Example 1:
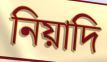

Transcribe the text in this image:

নিয়াদি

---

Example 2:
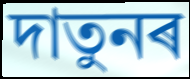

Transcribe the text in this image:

দাতুনৰ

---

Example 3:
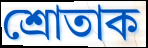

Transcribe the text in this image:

শ্ৰোতাক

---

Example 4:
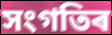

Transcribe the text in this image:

সংগতিৰ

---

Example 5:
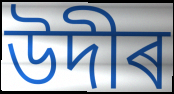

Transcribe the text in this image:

উদীৰ